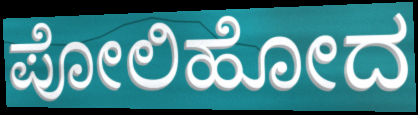
ಪೋಲಿಹೋದ